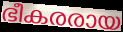
ഭീകരരായ